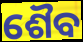
ଶୈବ